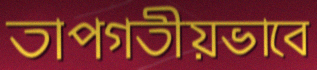
তাপগতীয়ভাবে